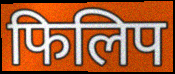
फिलिप